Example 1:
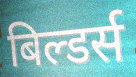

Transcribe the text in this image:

बिल्डर्स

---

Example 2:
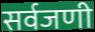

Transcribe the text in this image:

सर्वजणी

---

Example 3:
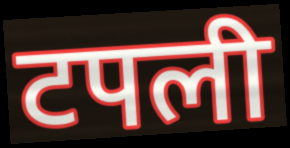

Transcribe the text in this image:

टपली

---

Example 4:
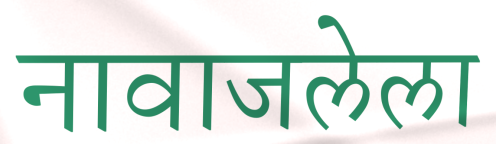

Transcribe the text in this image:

नावाजलेला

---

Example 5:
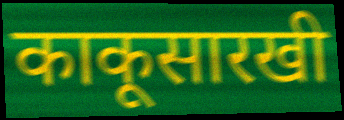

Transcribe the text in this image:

काकूसारखी